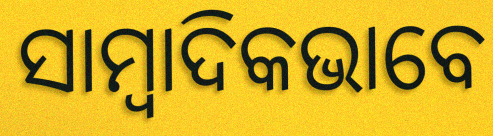
ସାମ୍ୱାଦିକଭାବେ